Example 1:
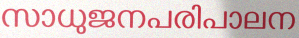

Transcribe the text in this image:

സാധുജനപരിപാലന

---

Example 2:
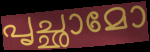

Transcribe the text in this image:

പൃച്ഛാമോ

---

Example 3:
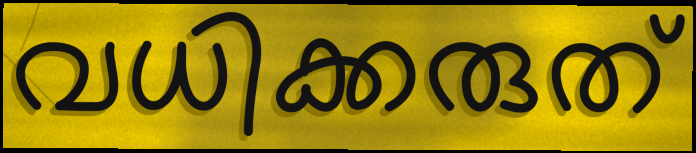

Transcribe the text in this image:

വധിക്കരുത്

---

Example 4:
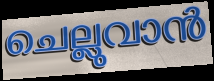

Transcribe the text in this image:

ചെല്ലുവാൻ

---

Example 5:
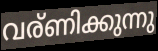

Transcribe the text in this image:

വര്ണിക്കുന്നു